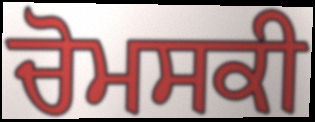
ਚੋਮਸਕੀ